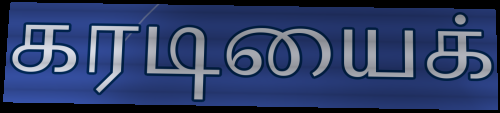
கரடியைக்